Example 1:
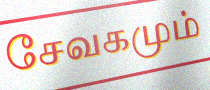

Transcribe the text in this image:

சேவகமும்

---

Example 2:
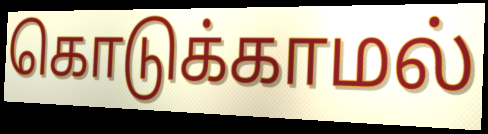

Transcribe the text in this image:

கொடுக்காமல்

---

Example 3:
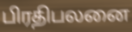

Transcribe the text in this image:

பிரதிபலனை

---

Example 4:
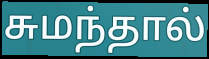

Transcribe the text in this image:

சுமந்தால்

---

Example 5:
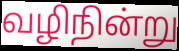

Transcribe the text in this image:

வழிநின்று